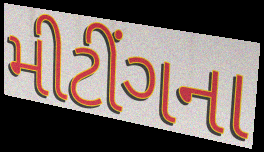
મીટીંગના